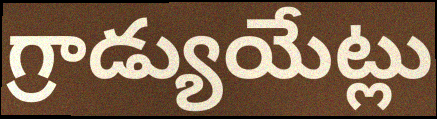
గ్రాడ్యుయేట్లు